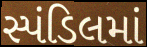
સ્પંડિલમાં